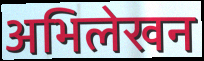
अभिलेखन